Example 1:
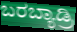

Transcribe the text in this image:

ಬರಬ್ಯಾಡ್ರಿ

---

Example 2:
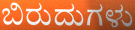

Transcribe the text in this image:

ಬಿರುದುಗಳು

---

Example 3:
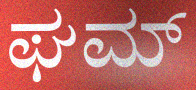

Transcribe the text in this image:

ಘಮ್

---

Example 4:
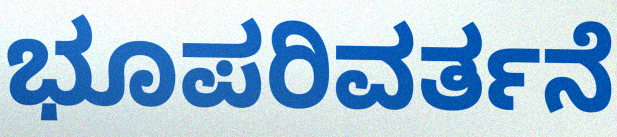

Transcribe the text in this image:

ಭೂಪರಿವರ್ತನೆ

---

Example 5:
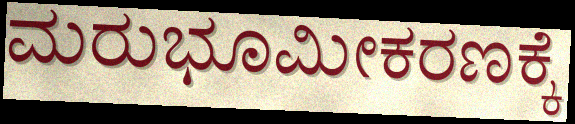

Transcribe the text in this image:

ಮರುಭೂಮೀಕರಣಕ್ಕೆ